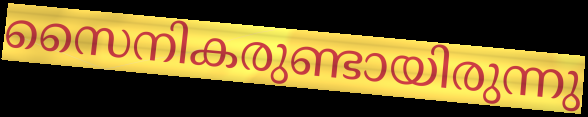
സൈനികരുണ്ടായിരുന്നു